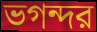
ভগন্দর